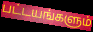
பட்டயங்களும்